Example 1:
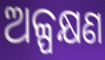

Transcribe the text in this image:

ଅଳ୍ପକ୍ଷଣ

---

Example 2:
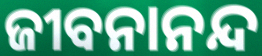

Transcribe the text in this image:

ଜୀବନାନନ୍ଦ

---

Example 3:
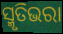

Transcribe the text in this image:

ସ୍ମୃତିଭରା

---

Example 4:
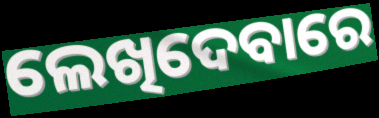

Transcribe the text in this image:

ଲେଖିଦେବାରେ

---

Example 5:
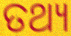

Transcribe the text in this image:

ତଥ୍ୟ